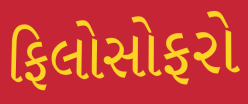
ફિલોસોફરો